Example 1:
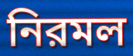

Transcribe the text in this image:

নিরমল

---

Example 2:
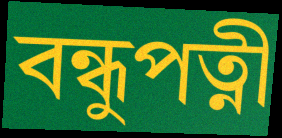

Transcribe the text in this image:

বন্ধুপত্নী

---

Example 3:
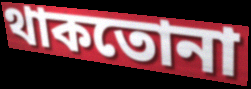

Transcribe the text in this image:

থাকতোনা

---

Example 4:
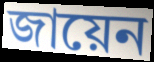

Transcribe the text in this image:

জায়েন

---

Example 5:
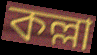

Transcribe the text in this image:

কল্লা